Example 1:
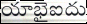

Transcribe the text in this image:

యాభైఐదు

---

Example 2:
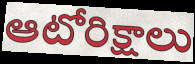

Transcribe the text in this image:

ఆటోరిక్షాలు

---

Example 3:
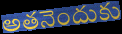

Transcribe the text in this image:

అతనెందుకు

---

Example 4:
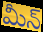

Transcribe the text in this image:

మీన్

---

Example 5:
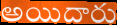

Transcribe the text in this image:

అయిదారు